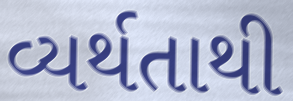
વ્યર્થતાથી